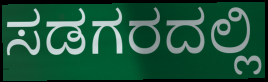
ಸಡಗರದಲ್ಲಿ